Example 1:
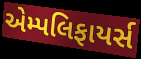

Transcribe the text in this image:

એમ્પલિફાયર્સ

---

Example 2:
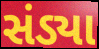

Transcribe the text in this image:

સંડ્યા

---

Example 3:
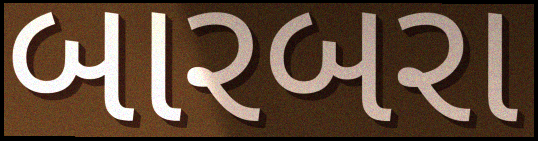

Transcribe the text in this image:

બારબરા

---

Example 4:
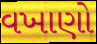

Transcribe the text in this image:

વખાણો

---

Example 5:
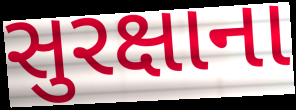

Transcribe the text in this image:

સુરક્ષાના